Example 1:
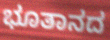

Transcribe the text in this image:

ಭೂತಾನದ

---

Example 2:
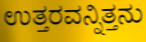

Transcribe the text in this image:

ಉತ್ತರವನ್ನಿತ್ತನು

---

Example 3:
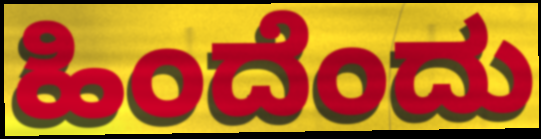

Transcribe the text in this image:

ಹಿಂದೆಂದು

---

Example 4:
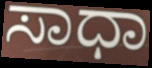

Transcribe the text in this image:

ಸಾಧಾ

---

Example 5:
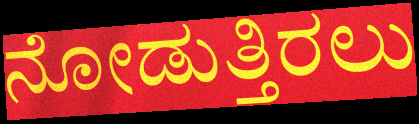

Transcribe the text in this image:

ನೋಡುತ್ತಿರಲು